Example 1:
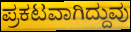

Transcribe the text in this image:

ಪ್ರಕಟವಾಗಿದ್ದುವು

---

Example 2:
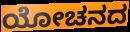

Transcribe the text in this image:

ಯೋಚನದ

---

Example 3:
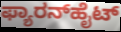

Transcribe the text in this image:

ಫ್ಯಾರನ್‌ಹೈಟ್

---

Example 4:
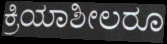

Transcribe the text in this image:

ಕ್ರಿಯಾಶೀಲರೂ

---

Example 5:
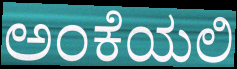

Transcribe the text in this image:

ಅಂಕೆಯಲಿ